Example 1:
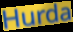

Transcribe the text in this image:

Hurda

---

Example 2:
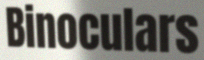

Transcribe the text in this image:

Binoculars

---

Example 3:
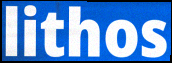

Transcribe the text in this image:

lithos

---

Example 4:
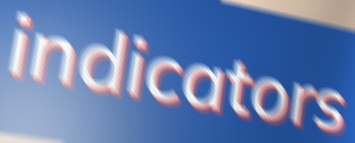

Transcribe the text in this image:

indicators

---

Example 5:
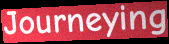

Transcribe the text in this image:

Journeying